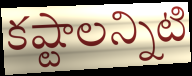
కష్టాలన్నిటి